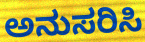
ಅನುಸರಿಸಿ